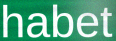
habet